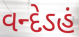
વન્દેઽહં